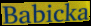
Babicka